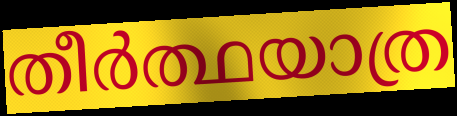
തീർത്ഥയാത്ര